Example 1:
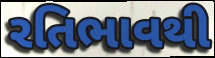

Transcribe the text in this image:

રતિભાવથી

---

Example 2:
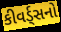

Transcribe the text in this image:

કીવર્ડ્સનો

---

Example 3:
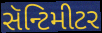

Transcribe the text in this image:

સૅન્ટિમીટર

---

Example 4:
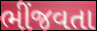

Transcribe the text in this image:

ભીંજવતા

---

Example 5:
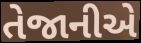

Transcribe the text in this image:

તેજાનીએ